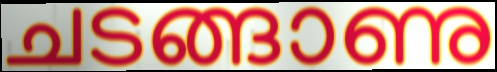
ചടങ്ങാണു